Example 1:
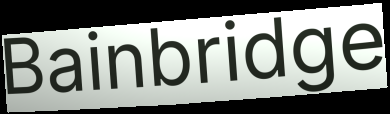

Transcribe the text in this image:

Bainbridge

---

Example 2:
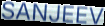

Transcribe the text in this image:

SANJEEV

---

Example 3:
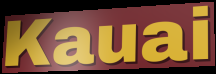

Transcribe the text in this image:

Kauai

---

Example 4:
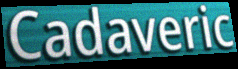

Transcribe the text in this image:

Cadaveric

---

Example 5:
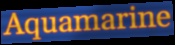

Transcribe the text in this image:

Aquamarine